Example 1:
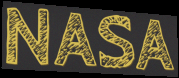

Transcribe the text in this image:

NASA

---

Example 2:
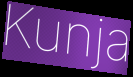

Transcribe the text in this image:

Kunja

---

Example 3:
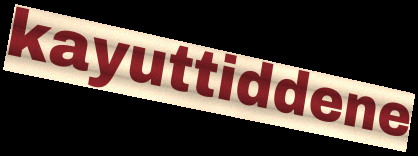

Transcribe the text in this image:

kayuttiddene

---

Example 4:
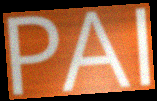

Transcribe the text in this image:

PAI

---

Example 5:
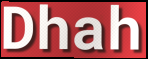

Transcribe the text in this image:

Dhah